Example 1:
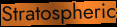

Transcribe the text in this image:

Stratospheric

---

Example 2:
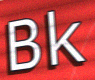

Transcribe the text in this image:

Bk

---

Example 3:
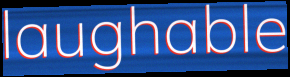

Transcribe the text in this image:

laughable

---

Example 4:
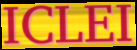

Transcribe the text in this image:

ICLEI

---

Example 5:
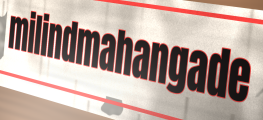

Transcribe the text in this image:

milindmahangade